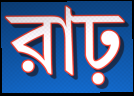
রাঢ়